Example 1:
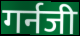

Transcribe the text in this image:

गर्नजी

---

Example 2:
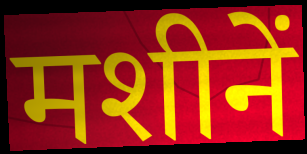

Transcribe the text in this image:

मशीनें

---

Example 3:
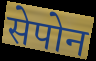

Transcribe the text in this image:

सेपोन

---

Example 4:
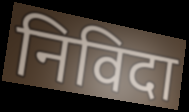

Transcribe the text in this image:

निविदा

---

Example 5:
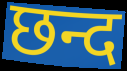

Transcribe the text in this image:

छन्‍द